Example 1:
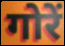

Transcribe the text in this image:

गोरें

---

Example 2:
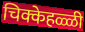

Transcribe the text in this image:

चिक्केहळ्ळी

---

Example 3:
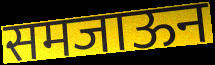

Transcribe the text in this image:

समजाऊन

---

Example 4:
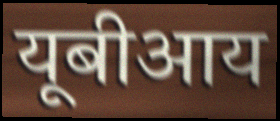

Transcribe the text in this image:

यूबीआय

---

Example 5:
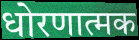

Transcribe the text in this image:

धोरणात्मक